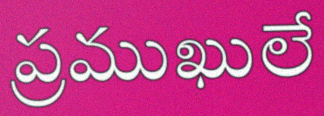
ప్రముఖులే